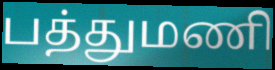
பத்துமணி